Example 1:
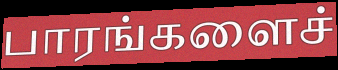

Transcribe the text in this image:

பாரங்களைச்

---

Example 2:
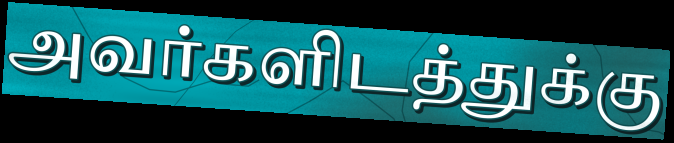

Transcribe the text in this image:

அவர்களிடத்துக்கு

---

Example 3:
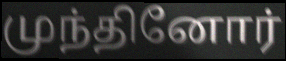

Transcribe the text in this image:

முந்தினோர்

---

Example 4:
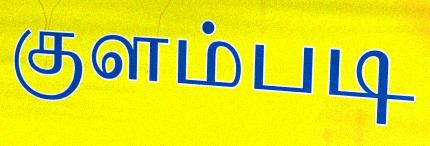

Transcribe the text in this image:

குளம்படி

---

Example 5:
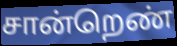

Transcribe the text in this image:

சான்றெண்